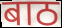
बाठ